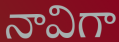
నావిగా